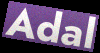
Adal